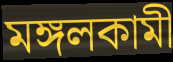
মঙ্গলকামী